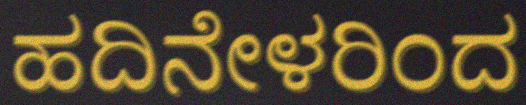
ಹದಿನೇಳರಿಂದ